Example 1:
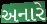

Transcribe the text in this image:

અનારે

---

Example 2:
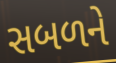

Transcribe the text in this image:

સબળને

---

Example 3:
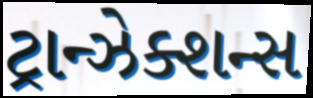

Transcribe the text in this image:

ટ્રાન્ઝેક્શન્સ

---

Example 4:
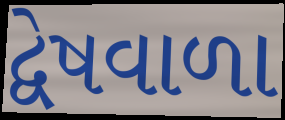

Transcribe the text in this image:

દ્વેષવાળા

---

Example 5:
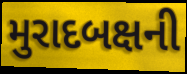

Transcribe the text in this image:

મુરાદબક્ષની